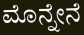
ಮೊನ್ನೇನೆ